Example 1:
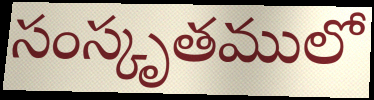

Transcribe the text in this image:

సంస్కృతములో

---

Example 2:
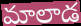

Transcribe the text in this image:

మాలాడ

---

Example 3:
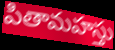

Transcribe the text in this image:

పితామహస్తు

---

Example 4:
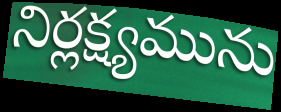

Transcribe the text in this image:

నిర్లక్ష్యమును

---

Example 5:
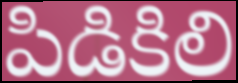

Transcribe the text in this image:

పిడికిలి